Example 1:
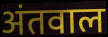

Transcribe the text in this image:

अंतवाल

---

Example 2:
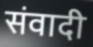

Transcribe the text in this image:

संवादी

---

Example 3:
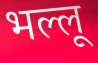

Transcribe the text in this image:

भल्लू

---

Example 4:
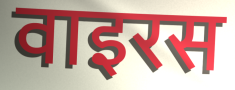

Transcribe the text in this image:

वाइरस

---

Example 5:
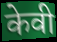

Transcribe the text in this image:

केवी